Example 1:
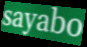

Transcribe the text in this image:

sayabo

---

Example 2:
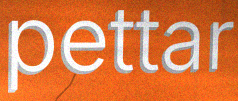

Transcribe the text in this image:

pettar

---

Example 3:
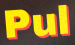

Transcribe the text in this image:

Pul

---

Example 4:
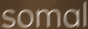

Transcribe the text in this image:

somal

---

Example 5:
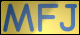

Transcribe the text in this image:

MFJ